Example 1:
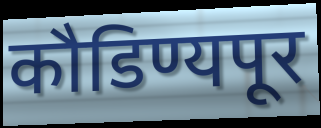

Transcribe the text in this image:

कौडिण्यपूर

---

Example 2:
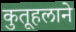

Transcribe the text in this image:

कुतूहलाने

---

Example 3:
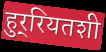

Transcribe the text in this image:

हुर्रियतशी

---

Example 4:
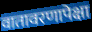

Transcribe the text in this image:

वातावरणापेक्षा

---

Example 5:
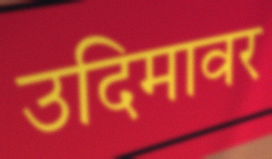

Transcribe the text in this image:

उदिमावर